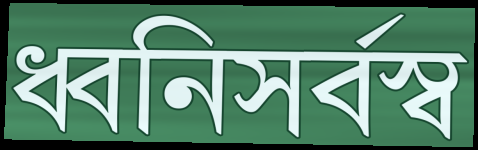
ধ্বনিসর্বস্ব